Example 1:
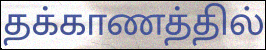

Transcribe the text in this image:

தக்காணத்தில்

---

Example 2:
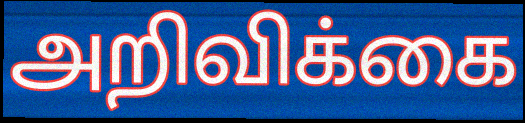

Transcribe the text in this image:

அறிவிக்கை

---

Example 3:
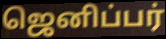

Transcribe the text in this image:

ஜெனிப்பர்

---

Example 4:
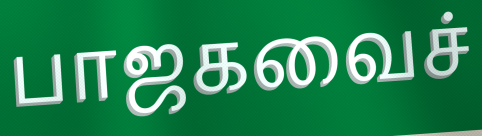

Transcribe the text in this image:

பாஜகவைச்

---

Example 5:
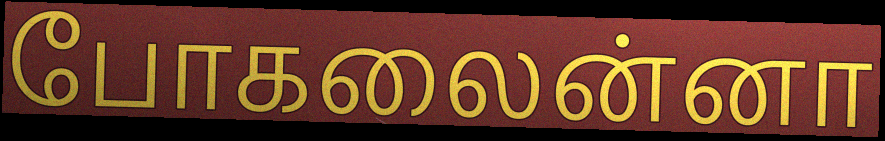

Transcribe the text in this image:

போகலைன்னா